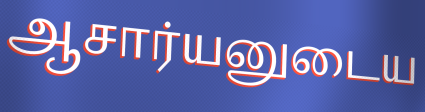
ஆசார்யனுடைய